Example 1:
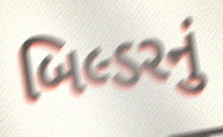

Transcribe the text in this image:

બિલ્ડરનું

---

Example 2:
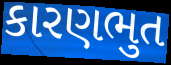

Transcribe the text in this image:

કારણભુત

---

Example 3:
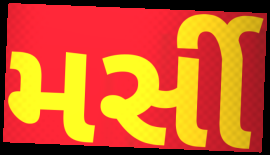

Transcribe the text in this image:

મર્સી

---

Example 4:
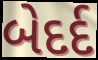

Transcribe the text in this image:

બેદર્દ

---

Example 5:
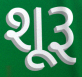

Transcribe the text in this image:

શૂરૂ